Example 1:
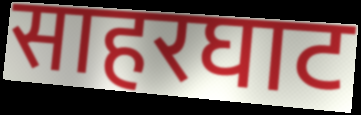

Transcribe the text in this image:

साहरघाट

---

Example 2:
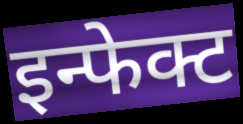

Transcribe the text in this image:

इन्फेक्ट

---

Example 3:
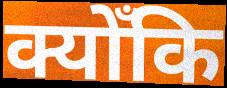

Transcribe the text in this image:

क्योँकि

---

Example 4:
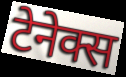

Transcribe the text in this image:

टेनेक्स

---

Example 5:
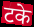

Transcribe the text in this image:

टके